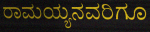
ರಾಮಯ್ಯನವರಿಗೂ